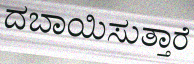
ದಬಾಯಿಸುತ್ತಾರೆ